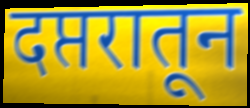
दप्तरातून